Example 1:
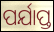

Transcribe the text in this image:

ପର୍ଯାପ୍ତ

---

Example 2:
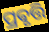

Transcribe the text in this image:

ପ୍ରଵୃତ୍ତି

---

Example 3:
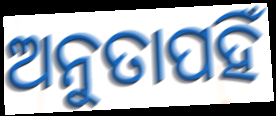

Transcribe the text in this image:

ଅନୁତାପହିଁ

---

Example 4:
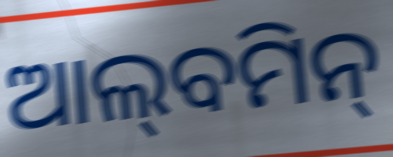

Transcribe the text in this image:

ଆଲ୍‌ବମିନ୍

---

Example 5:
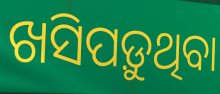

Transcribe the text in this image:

ଖସିପଡ଼ୁଥିବା